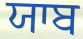
ਯਾਬ